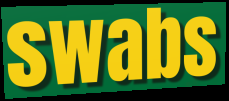
swabs